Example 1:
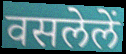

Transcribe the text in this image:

वसलेलें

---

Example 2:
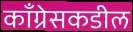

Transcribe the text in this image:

काँग्रेसकडील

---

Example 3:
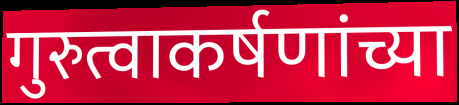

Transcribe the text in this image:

गुरुत्वाकर्षणांच्या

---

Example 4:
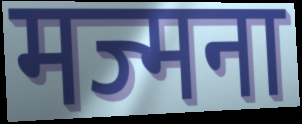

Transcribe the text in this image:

मज्मना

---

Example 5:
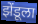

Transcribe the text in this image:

झेंडूला